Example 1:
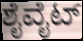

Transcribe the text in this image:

ಶೈವೈಟ್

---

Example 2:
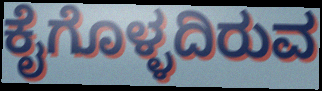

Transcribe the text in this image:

ಕೈಗೊಳ್ಳದಿರುವ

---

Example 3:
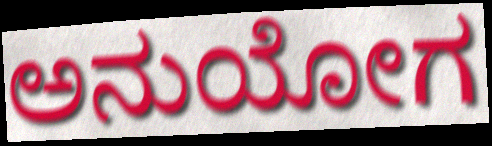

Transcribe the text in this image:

ಅನುಯೋಗ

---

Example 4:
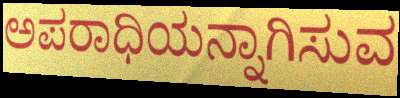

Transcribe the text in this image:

ಅಪರಾಧಿಯನ್ನಾಗಿಸುವ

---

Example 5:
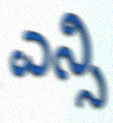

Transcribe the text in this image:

ಎನ್ಸಿ